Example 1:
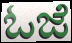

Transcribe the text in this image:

ಓಜೆ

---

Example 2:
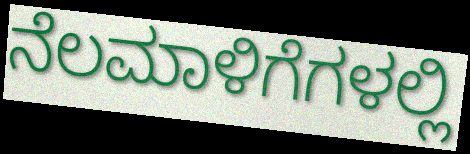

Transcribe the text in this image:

ನೆಲಮಾಳಿಗೆಗಳಲ್ಲಿ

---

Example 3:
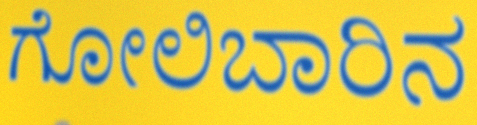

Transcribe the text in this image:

ಗೋಲಿಬಾರಿನ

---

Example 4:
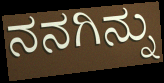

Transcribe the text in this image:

ನನಗಿನ್ನು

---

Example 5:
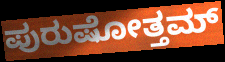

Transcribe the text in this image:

ಪುರುಷೋತ್ತಮ್